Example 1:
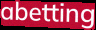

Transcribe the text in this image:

abetting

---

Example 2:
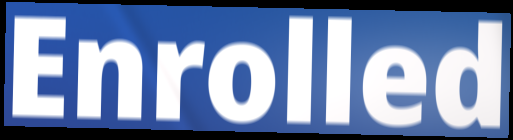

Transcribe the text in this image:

Enrolled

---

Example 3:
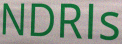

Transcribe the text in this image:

NDRIs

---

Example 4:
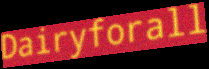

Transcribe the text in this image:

Dairyforall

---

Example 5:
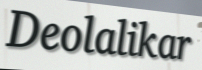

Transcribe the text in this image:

Deolalikar